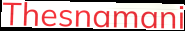
Thesnamani